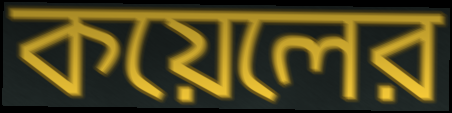
কয়েলের